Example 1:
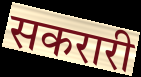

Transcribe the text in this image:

सकरारी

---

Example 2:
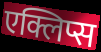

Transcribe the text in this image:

एक्लिप्स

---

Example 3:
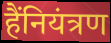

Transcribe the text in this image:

हैंनियंत्रण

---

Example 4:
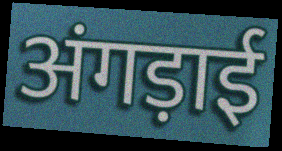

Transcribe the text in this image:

अंगड़ाई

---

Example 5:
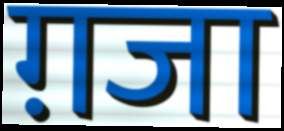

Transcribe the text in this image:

ग़जा